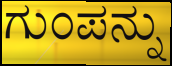
ಗುಂಪನ್ನು